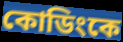
কোডিংকে